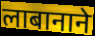
लाबानाने